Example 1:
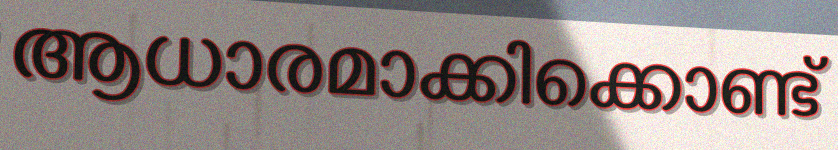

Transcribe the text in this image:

ആധാരമാക്കിക്കൊണ്ട്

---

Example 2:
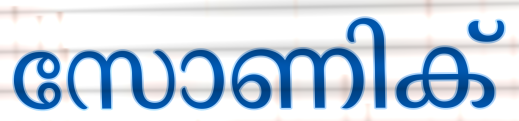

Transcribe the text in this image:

സോണിക്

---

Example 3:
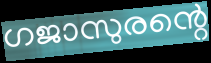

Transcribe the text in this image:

ഗജാസുരന്റെ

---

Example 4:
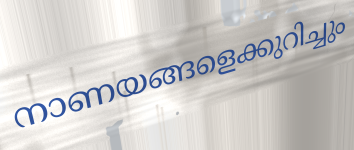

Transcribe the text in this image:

നാണയങ്ങളെക്കുറിച്ചും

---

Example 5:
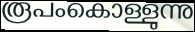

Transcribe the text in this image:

രൂപംകൊള്ളുന്നു